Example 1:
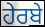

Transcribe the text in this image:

ਹੇਰਬੇ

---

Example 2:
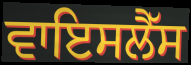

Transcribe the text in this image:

ਵਾਇਸਲੈੱਸ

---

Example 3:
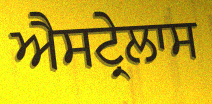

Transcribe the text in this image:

ਐਸਟ੍ਰੇਲਾਸ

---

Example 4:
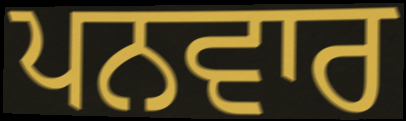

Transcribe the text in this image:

ਪਨਵਾਰ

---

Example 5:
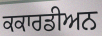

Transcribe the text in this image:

ਕਕਾਰਡੀਅਨ